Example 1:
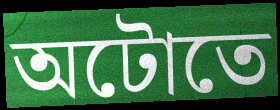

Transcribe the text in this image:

অটোতে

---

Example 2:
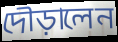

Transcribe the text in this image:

দৌড়ালেন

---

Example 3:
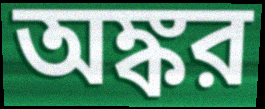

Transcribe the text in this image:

অঙ্কর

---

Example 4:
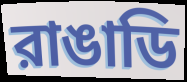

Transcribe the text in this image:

রাঙাডি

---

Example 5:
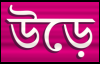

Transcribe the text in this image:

উড়ে